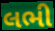
લભી